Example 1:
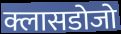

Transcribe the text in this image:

क्लासडोजो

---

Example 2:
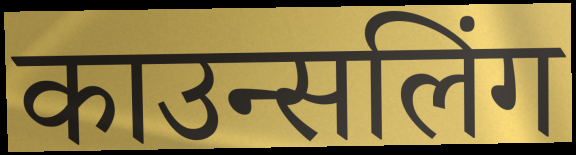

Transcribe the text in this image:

काउन्सलिंग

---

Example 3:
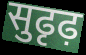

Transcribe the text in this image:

सुढृढ़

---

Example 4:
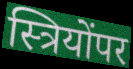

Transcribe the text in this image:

स्त्रियोंपर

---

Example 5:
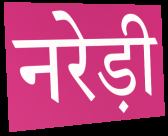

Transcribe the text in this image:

नरेड़ी